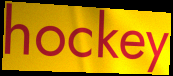
hockey